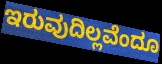
ಇರುವುದಿಲ್ಲವೆಂದೂ